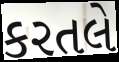
કરતલે